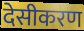
देसीकरण